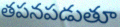
తపనపడుతూ